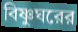
বিষ্ণুঘরের